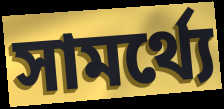
সামর্থ্যে